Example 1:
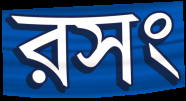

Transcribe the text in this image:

রসং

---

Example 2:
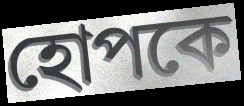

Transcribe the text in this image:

হোপকে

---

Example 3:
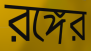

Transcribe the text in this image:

রঙ্গের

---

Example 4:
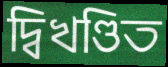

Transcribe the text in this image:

দ্বিখণ্ডিত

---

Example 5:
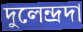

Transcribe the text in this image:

দুলেন্দ্রদা